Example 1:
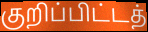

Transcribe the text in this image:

குறிப்பிட்டத்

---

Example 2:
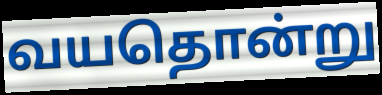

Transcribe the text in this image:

வயதொன்று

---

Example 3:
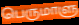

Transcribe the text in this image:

பெருமாளு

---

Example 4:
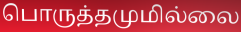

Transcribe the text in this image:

பொருத்தமுமில்லை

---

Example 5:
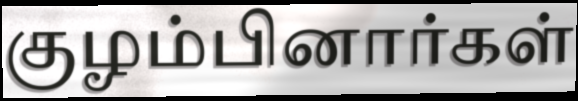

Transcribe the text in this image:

குழம்பினார்கள்